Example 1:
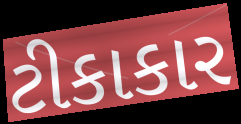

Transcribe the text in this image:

ટીકાકાર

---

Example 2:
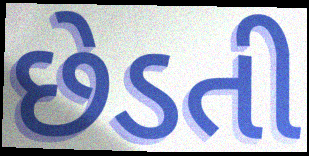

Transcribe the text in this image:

છેડતી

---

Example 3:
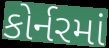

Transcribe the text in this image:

કોર્નરમાં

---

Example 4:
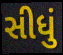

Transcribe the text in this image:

સીધું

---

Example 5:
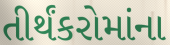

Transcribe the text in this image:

તીર્થંકરોમાંના